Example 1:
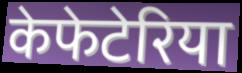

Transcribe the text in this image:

केफेटेरिया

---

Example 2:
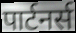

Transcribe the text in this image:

पार्टनर्स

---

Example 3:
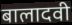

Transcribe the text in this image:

बालादवी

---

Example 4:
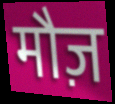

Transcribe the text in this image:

मौज़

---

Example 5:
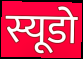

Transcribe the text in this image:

स्यूडो